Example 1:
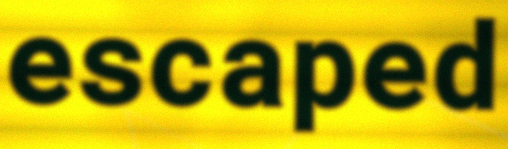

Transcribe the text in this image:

escaped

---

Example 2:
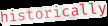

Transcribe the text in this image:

historically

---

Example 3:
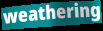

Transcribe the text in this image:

weathering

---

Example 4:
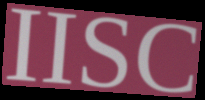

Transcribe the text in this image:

IISC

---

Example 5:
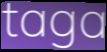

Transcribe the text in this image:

taga